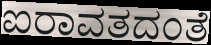
ಐರಾವತದಂತೆ